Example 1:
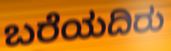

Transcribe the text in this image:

ಬರೆಯದಿರು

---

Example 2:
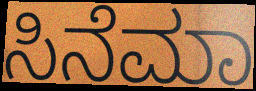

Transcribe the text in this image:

ಸಿನೆಮಾ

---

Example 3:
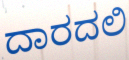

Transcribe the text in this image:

ದಾರದಲಿ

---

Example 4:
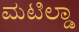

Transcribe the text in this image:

ಮಟಿಲ್ಡಾ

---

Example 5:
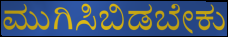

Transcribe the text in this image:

ಮುಗಿಸಿಬಿಡಬೇಕು